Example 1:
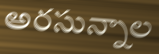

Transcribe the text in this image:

అరసున్నాల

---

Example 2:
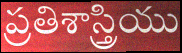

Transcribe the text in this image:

ప్రతిశాస్త్రియు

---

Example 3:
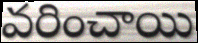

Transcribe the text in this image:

వరించాయి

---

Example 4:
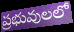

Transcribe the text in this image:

ప్రభువులలో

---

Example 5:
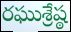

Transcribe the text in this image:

రఘుశ్రేష్ఠ